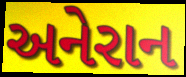
અનેરાન